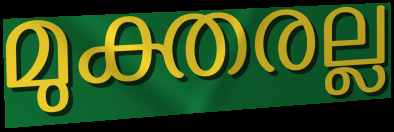
മുക്തരല്ല